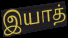
இயாத்